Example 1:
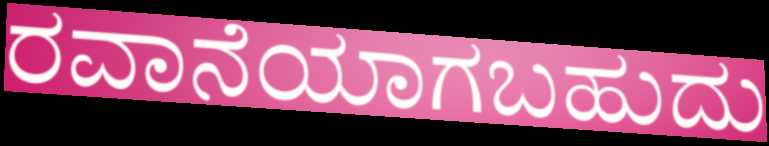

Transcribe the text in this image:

ರವಾನೆಯಾಗಬಹುದು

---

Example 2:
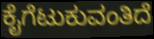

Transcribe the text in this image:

ಕೈಗೆಟುಕುವಂತಿದೆ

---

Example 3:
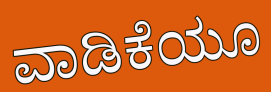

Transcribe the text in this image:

ವಾಡಿಕೆಯೂ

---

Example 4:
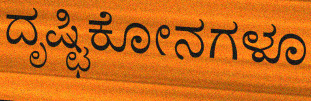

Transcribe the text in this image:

ದೃಷ್ಟಿಕೋನಗಳೂ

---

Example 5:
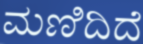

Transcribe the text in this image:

ಮಣಿದಿದೆ